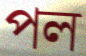
পল